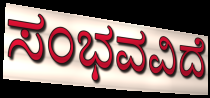
ಸಂಭವವಿದೆ